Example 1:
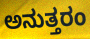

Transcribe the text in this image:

ಅನುತ್ತರಂ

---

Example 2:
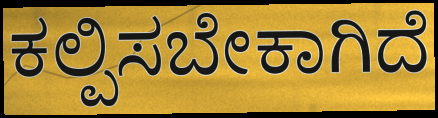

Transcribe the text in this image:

ಕಲ್ಪಿಸಬೇಕಾಗಿದೆ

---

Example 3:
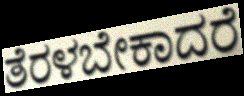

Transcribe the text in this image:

ತೆರಳಬೇಕಾದರೆ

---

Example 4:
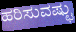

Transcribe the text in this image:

ಹರಿಸುವಷ್ಟು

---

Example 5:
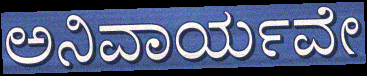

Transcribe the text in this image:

ಅನಿವಾರ್ಯವೇ